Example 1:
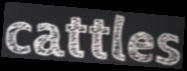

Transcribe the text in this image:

cattles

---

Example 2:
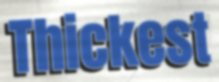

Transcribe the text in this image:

Thickest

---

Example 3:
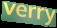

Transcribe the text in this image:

verry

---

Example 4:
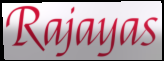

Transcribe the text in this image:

Rajayas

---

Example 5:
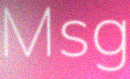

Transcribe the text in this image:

Msg